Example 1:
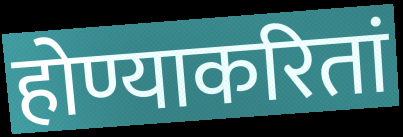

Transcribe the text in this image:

होण्याकरितां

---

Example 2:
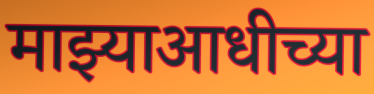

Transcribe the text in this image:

माझ्याआधीच्या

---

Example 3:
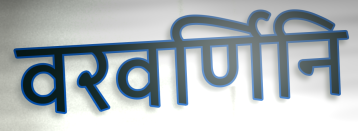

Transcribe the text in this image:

वरवर्णिनि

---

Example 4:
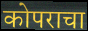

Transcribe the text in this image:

कोपराचा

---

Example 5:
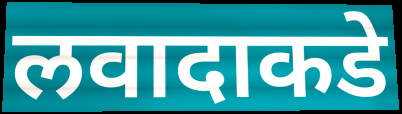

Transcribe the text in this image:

लवादाकडे